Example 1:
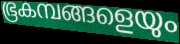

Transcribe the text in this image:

ഭൂകമ്പങ്ങളെയും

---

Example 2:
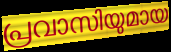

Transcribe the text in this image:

പ്രവാസിയുമായ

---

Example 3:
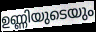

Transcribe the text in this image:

ഉണ്ണിയുടെയും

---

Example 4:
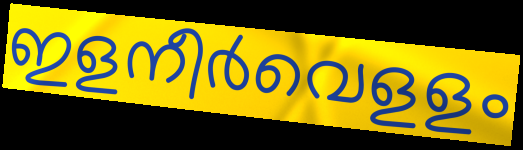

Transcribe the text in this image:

ഇളനീർവെളളം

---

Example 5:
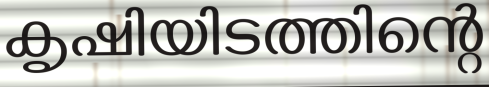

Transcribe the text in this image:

കൃഷിയിടത്തിന്റെ